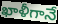
ఖాళీగానే